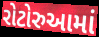
રોટોરુઆમાં